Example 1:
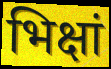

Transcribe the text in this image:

भिक्षां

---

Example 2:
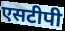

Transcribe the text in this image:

एसटीपी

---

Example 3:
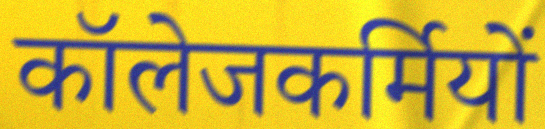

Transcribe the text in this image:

कॉलेजकर्मियों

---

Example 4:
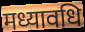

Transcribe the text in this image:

मध्यावधि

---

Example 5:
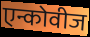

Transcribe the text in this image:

एन्कोवीज